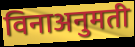
विनाअनुमती